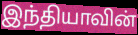
இந்தியாவின்